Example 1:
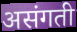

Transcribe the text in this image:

असंगती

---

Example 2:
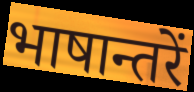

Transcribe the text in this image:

भाषान्तरें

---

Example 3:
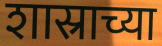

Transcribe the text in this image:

शास्राच्या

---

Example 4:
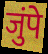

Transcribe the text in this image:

जुंपे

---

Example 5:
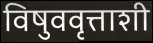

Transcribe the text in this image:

विषुववृत्ताशी